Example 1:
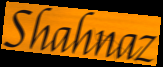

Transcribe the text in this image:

Shahnaz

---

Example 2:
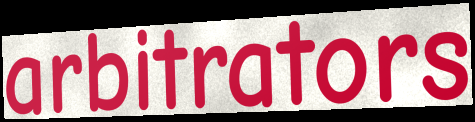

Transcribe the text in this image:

arbitrators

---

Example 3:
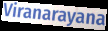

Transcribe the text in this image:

Viranarayana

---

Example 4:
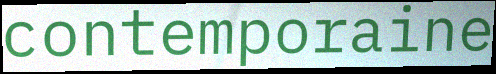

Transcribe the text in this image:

contemporaine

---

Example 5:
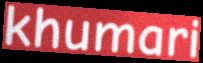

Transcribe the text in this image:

khumari